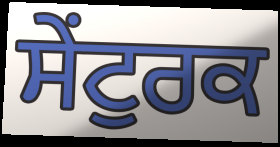
ਸੇਂਟੁਰਕ